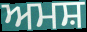
ਅਮਸ਼